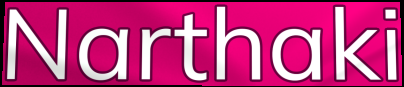
Narthaki